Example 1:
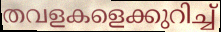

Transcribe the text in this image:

തവളകളെക്കുറിച്ച്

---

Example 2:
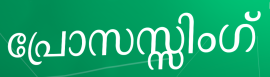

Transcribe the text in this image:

പ്രോസസ്സിംഗ്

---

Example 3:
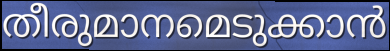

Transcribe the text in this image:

തീരുമാനമെടുക്കാൻ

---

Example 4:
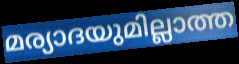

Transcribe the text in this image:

മര്യാദയുമില്ലാത്ത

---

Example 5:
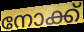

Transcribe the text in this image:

നോക്ക്